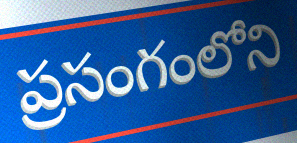
ప్రసంగంలోని